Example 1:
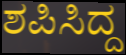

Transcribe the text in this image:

ಶಪಿಸಿದ್ದ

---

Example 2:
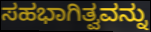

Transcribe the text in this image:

ಸಹಭಾಗಿತ್ವವನ್ನು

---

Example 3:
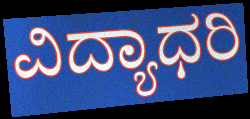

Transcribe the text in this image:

ವಿದ್ಯಾಧರಿ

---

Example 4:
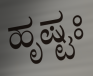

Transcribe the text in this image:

ಹೃಷ್ಟಃ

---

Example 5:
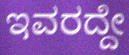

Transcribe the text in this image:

ಇವರದ್ದೇ